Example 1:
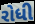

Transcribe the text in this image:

રોધી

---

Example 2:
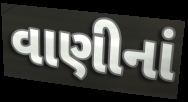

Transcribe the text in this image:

વાણીનાં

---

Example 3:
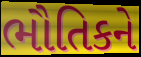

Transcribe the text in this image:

ભૌતિકને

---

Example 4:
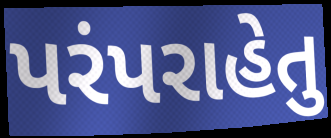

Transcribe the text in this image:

પરંપરાહેતુ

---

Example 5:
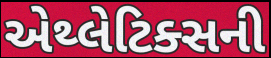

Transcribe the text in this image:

એથ્લેટિક્સની